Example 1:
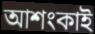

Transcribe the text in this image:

আশংকাই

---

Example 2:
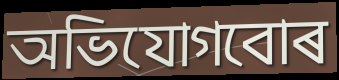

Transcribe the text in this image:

অভিযোগবোৰ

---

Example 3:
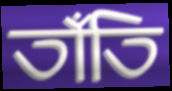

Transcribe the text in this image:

তাঁতি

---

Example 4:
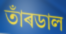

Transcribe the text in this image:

তাঁৰডাল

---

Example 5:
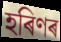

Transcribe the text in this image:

হৰিণৰ